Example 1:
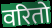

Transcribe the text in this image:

वरितो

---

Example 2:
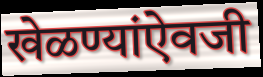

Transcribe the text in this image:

खेळण्यांऐवजी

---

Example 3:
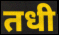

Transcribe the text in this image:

तधी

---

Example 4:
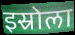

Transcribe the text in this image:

इस्रोला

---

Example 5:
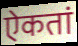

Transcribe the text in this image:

ऐकतां